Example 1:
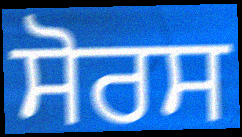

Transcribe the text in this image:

ਸੋਰਸ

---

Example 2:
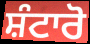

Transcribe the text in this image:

ਸ਼ੰਟਾਰੋ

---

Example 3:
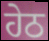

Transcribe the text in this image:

ਹੇਠ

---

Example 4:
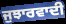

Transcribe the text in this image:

ਜੁਝਾਰਵਾਦੀ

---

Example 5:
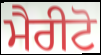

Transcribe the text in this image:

ਮੈਰੀਟੋ